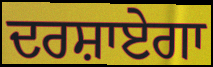
ਦਰਸ਼ਾਏਗਾ